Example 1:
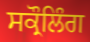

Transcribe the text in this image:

ਸਕ੍ਰੌਲਿੰਗ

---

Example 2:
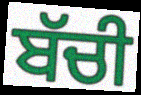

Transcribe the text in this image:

ਬੱਚੀ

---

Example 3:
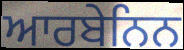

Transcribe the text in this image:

ਆਰਬੇਨਿਨ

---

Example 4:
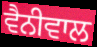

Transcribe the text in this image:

ਵੈਨੀਵਾਲ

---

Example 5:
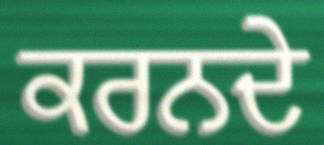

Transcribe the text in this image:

ਕਰਨਦੇ